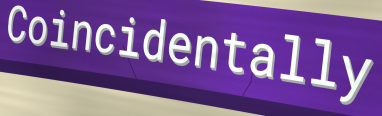
Coincidentally